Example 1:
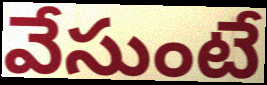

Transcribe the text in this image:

వేసుంటే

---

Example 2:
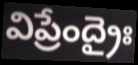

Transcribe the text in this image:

విప్రేంద్రైః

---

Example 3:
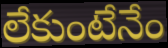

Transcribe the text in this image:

లేకుంటేనేం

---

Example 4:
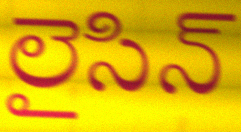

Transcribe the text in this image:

లైసిన్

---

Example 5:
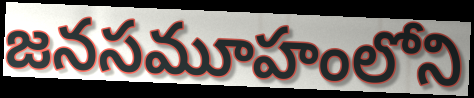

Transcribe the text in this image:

జనసమూహంలోని